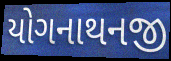
યોગનાથનજી